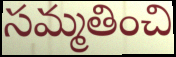
సమ్మతించి